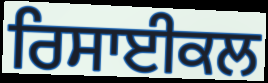
ਰਿਸਾਈਕਲ